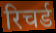
रिचर्ड